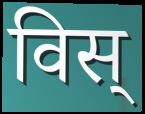
विस्